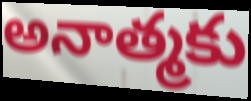
అనాత్మకు